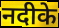
नदीके